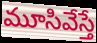
మూసివేస్తే